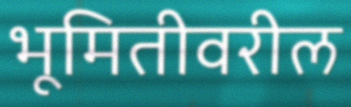
भूमितीवरील